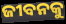
ଜୀବନକୁ